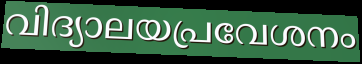
വിദ്യാലയപ്രവേശനം